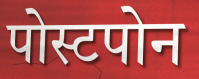
पोस्टपोन